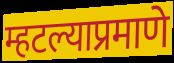
म्हटल्याप्रमाणे